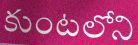
కుంటలోని